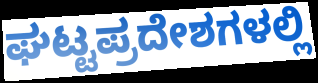
ಘಟ್ಟಪ್ರದೇಶಗಳಲ್ಲಿ